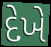
દેખે